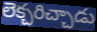
లెక్చరిచ్చాడు